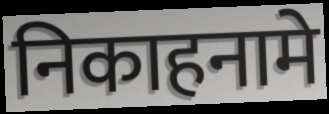
निकाहनामे